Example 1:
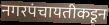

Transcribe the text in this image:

नगरपंचायतीकडून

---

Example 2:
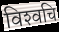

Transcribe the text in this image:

विश्वचि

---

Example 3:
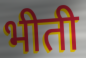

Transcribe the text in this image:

भीती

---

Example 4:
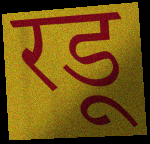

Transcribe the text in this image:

रडू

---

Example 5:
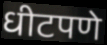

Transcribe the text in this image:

धीटपणे